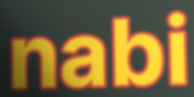
nabi